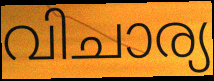
വിചാര്യ